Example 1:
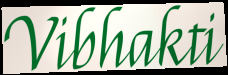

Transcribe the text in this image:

Vibhakti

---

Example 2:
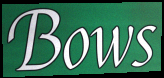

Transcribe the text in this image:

Bows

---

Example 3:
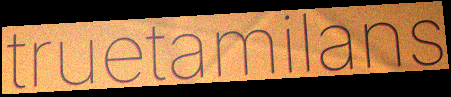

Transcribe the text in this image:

truetamilans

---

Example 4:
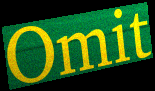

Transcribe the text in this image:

Omit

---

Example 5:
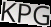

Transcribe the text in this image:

KPG